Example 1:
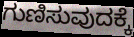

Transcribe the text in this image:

ಗುಣಿಸುವುದಕ್ಕೆ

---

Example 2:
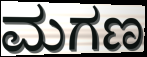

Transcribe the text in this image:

ಮಗಣ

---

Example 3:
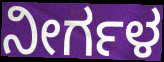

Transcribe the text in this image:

ನೀರ್ಗಳ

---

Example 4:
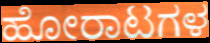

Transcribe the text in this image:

ಹೋರಾಟಗಳ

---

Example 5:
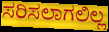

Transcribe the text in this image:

ಸರಿಸಲಾಗಲಿಲ್ಲ